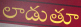
లాడుతూ